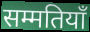
सम्मतियाँ